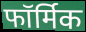
फॉर्मिक